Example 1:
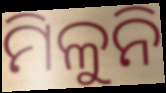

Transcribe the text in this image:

ମିଳୁନି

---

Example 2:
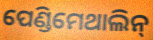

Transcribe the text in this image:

ପେଣ୍ଡିମେଥାଲିନ୍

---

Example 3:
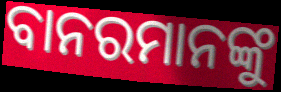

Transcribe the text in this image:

ବାନରମାନଙ୍କୁ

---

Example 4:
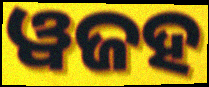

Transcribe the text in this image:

ୱଜହ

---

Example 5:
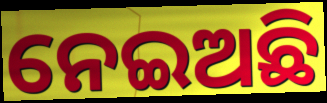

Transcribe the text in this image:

ନେଇଅଛି